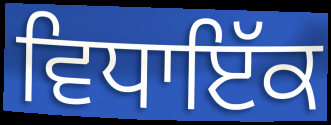
ਵਿਧਾਇੱਕ